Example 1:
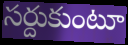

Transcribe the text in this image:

సర్దుకుంటూ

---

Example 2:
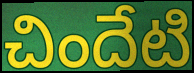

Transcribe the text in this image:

చిందేటి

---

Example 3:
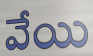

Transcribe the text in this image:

వేయి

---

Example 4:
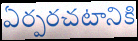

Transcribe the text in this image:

ఏర్పరచటానికి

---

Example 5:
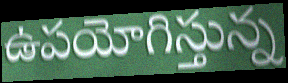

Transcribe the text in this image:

ఉపయోగిస్తున్న